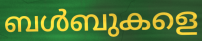
ബൾബുകളെ